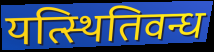
यत्स्थितिवन्ध